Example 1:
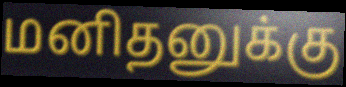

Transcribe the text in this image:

மனிதனுக்கு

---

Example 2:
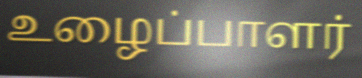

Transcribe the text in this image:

உழைப்பாளர்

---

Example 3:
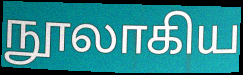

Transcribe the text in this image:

நூலாகிய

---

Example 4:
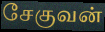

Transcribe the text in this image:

சேகுவன்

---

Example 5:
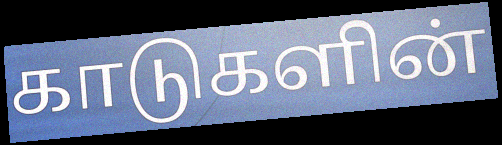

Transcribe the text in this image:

காடுகளின்